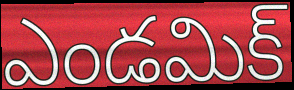
ఎండమిక్